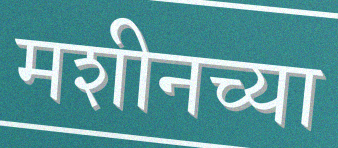
मशीनच्या